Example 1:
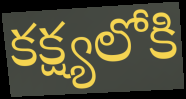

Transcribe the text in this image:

కక్ష్యలోకి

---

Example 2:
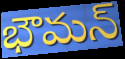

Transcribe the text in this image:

భౌమన్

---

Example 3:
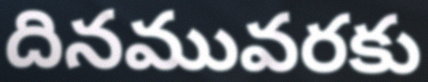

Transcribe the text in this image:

దినమువరకు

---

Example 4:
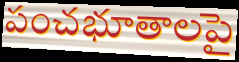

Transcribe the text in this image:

పంచభూతాలపై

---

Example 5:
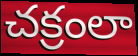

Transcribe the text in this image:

చక్రంలా